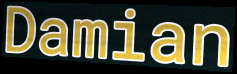
Damian